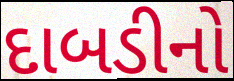
દાબડીનો